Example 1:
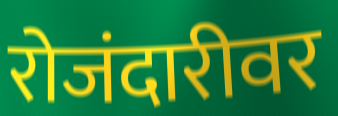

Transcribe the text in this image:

रोजंदारीवर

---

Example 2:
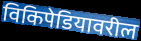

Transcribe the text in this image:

विकिपेडियावरील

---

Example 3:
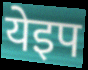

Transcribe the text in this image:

येइप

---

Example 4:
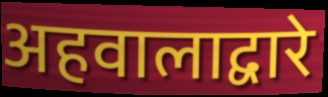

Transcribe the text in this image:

अहवालाद्वारे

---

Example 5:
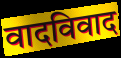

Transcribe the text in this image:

वादविवाद